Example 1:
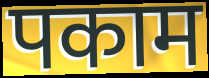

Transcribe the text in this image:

पकाम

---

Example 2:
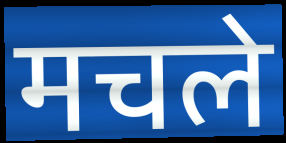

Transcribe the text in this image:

मचले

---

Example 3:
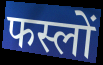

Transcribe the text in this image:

फस्लों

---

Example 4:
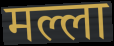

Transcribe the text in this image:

मल्ला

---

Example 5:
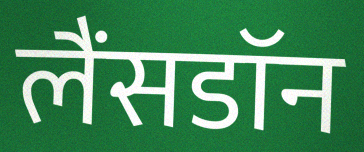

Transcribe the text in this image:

लैंसडॉन